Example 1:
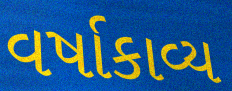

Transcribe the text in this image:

વર્ષાકાવ્ય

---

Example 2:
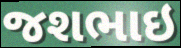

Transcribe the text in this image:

જશભાઇ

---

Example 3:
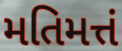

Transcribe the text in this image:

મતિમત્તં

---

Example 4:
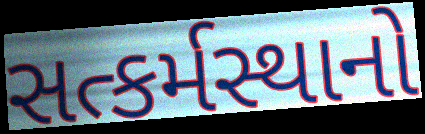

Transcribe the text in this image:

સત્કર્મસ્થાનો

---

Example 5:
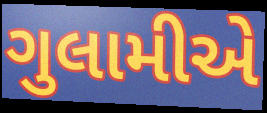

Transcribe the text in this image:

ગુલામીએ